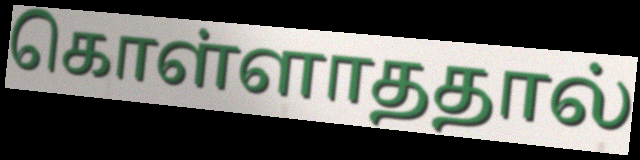
கொள்ளாததால்